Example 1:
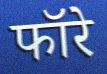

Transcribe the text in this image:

फॉरे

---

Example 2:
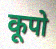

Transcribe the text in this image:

कूपो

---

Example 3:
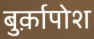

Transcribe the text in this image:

बुर्क़ापोश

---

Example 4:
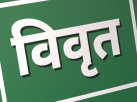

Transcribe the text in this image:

विवृत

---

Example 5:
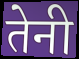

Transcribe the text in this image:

तेनी